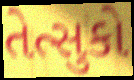
તેત્સુકો